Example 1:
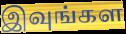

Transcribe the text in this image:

இவுங்கள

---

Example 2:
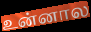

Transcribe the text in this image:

உன்னால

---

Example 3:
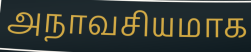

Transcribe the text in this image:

அநாவசியமாக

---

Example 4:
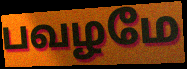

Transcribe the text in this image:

பவழமே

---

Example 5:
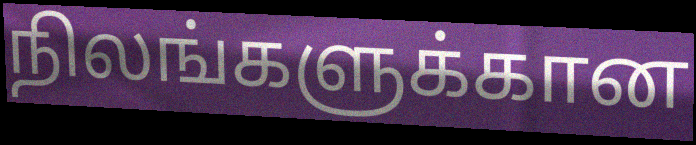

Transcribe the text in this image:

நிலங்களுக்கான